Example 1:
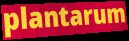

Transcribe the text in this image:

plantarum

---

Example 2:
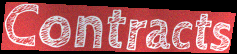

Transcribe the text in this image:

Contracts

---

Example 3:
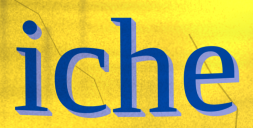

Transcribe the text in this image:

iche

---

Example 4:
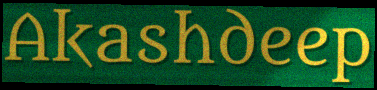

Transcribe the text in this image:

Akashdeep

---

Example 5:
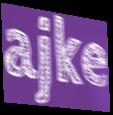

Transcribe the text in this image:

ajke